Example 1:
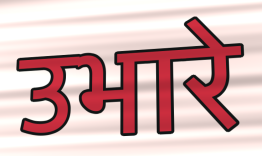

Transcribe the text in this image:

उभारे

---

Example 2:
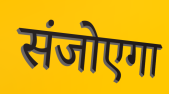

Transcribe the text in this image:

संजोएगा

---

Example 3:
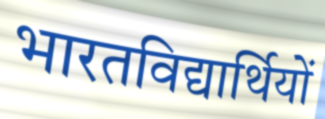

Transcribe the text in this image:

भारतविद्यार्थियों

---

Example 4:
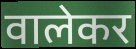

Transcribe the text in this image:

वालेकर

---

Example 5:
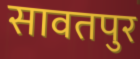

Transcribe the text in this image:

सावतपुर